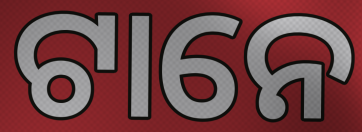
ଟାନେ